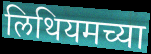
लिथियमच्या